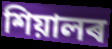
শিয়ালৰ